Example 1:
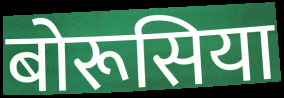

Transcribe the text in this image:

बोरूसिया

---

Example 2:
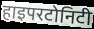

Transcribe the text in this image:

हाइपरटोनिटी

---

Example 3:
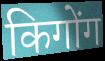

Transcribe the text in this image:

किगोंग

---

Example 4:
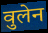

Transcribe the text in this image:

वुलेन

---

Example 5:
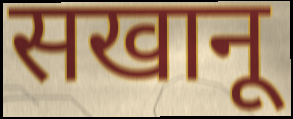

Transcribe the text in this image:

सखानू